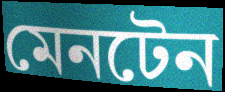
মেনটেন